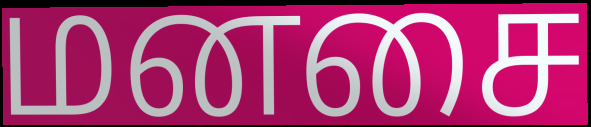
மனசை